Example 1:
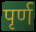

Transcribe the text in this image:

पृर्ण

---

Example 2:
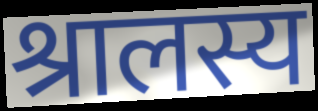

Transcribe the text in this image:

श्रालस्य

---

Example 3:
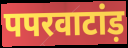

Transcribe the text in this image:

पपरवाटांड़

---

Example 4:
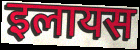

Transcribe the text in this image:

इलायस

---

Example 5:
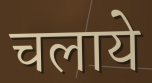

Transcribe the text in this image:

चलाये